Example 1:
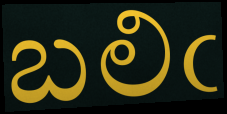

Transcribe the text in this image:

బలిఁ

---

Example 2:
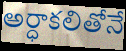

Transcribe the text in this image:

అర్ధాకలితోనే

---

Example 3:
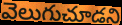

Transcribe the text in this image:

వెలుగుచూడని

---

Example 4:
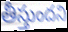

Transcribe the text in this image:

తీస్తుందని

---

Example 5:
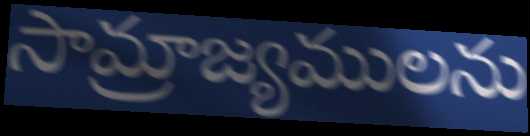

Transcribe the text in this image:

సామ్రాజ్యములను